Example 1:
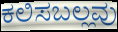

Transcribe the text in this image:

ಕಲಿಸಬಲ್ಲವು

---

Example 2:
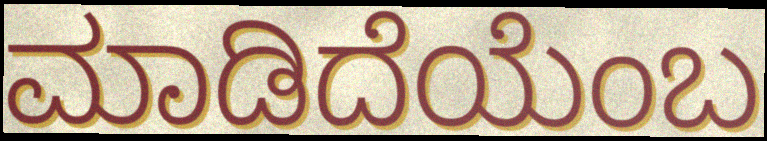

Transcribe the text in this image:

ಮಾಡಿದೆಯೆಂಬ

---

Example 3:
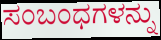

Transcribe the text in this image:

ಸಂಬಂಧಗಳನ್ನು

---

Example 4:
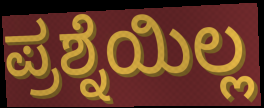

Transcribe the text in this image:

ಪ್ರಶ್ನೆಯಿಲ್ಲ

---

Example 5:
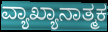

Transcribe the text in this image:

ವ್ಯಾಖ್ಯಾನಾತ್ಮಕ